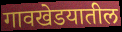
गावखेडयातील